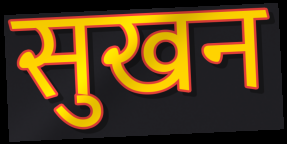
सुखन